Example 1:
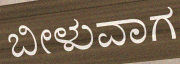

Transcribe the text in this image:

ಬೀಳುವಾಗ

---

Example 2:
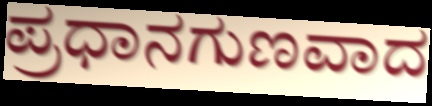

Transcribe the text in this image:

ಪ್ರಧಾನಗುಣವಾದ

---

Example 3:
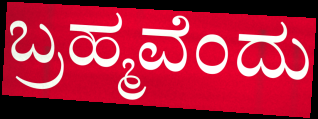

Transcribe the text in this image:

ಬ್ರಹ್ಮವೆಂದು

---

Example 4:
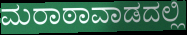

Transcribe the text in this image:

ಮರಾಠಾವಾಡದಲ್ಲಿ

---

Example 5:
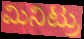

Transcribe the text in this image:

ಮಿನಿಟ್ರು